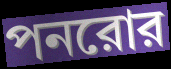
পনরোর